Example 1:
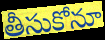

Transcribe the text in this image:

తీసుకోనూ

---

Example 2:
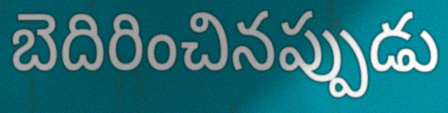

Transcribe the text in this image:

బెదిరించినప్పుడు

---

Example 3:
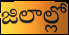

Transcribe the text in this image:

జిలాల్లో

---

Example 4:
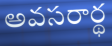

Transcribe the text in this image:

అవసరార్థ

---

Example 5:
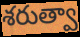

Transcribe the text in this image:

శరుత్వా